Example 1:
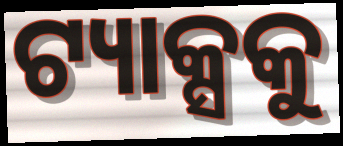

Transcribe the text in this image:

ଟ୍ୟାକ୍ସକୁ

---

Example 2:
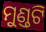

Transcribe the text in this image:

ମୁଣ୍ଡଟି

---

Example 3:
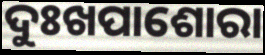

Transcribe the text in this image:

ଦୁଃଖପାଶୋରା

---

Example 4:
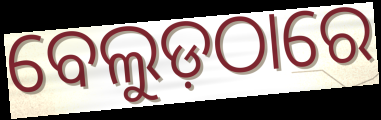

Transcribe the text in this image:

ବେଲୁଡ଼ଠାରେ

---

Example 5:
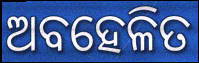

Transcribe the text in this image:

ଅବହେଳିତ